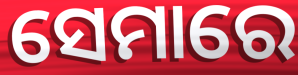
ସେମାରେ